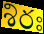
శిరః